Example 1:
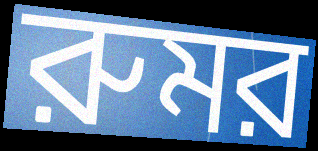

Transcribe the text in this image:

রুমর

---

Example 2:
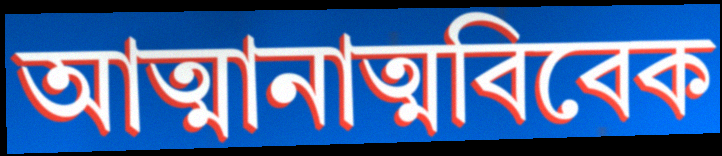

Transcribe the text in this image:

আত্মানাত্মবিবেক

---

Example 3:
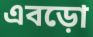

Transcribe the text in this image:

এবড়ো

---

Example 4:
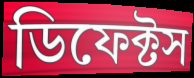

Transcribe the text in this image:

ডিফেক্টস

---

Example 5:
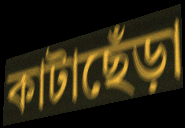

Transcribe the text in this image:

কাটাছেঁড়া